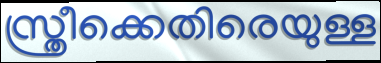
സ്ത്രീക്കെതിരെയുള്ള